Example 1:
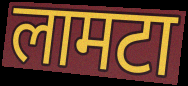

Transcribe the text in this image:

लामटा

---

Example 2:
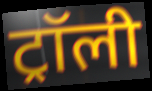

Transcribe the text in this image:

ट्रॉली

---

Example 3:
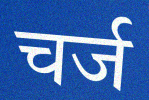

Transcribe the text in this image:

चर्ज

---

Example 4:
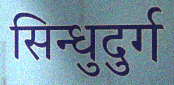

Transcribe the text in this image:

सिन्धुदुर्ग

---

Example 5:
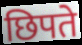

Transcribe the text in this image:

छिपते